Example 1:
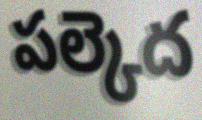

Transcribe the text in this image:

పల్కెద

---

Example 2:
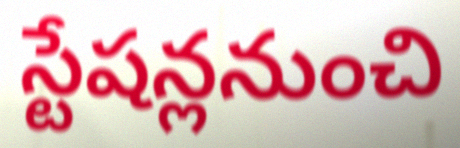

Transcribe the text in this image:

స్టేషన్లనుంచి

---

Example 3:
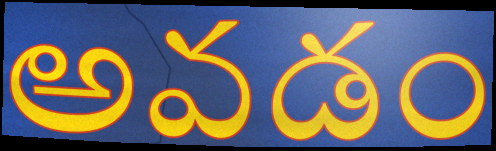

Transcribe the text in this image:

అవడం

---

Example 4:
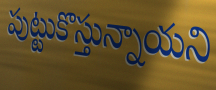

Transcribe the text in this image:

పుట్టుకొస్తున్నాయని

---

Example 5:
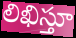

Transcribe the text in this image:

లిఖిస్తూ